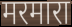
मरमारा